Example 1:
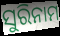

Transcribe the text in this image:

ସୁରିନାମ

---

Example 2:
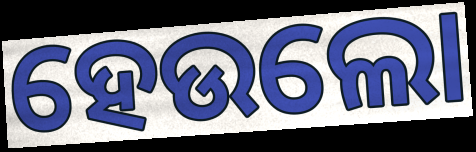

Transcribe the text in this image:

ହେଉଲୋ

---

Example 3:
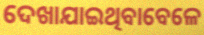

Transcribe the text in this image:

ଦେଖାଯାଇଥିବାବେଳେ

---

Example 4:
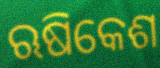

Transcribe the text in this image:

ଋଷିକେଶ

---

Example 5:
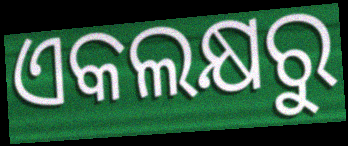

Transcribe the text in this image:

ଏକଲକ୍ଷରୁ